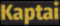
Kaptai